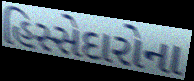
હિસ્સેદારોના